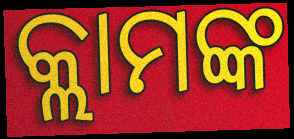
କ୍ଲାମଙ୍କ